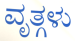
ವೃತ್ಗಳು